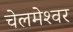
चेलमेश्‍वर